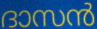
ദാസൻ